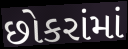
છોકરાંમાં